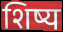
शिष्य